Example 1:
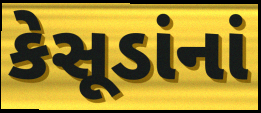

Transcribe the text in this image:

કેસૂડાંનાં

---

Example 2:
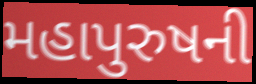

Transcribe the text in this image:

મહાપુરુષની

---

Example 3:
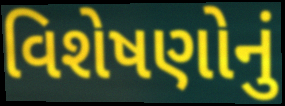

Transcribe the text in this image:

વિશેષણોનું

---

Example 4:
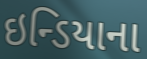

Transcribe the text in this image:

ઇન્ડિયાના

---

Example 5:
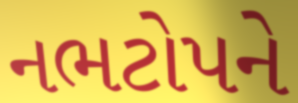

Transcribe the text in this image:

નભટોપને